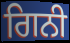
ਗਿਨੀ